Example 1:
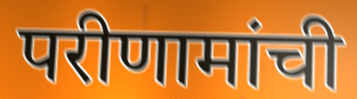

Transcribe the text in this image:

परीणामांची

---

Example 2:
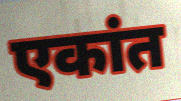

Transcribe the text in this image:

एकांत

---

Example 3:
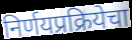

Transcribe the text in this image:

निर्णयप्रक्रियेचा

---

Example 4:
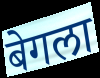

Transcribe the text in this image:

बेगला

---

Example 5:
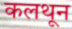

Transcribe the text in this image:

कलथून